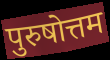
पुरुषोत्तम